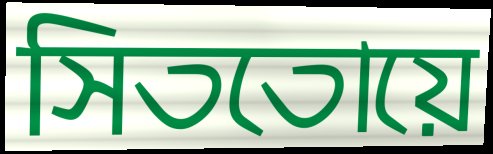
সিততোয়ে